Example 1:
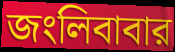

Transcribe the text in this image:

জংলিবাবার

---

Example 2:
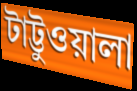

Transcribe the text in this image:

টাট্টুওয়ালা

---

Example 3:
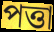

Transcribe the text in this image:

পত্তা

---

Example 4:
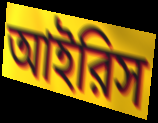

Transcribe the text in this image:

আইরিস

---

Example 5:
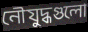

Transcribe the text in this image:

নৌযুদ্ধগুলো